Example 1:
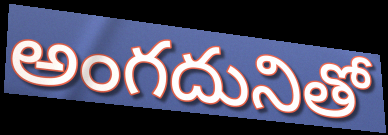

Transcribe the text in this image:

అంగదునితో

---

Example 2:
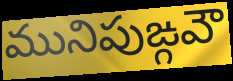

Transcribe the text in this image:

మునిపుఙ్గవౌ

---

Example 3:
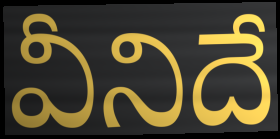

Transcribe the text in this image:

వీనిదే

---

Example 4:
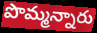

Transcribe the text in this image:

పొమ్మన్నారు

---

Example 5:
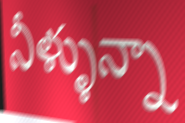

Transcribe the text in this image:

నీళ్ళున్నా